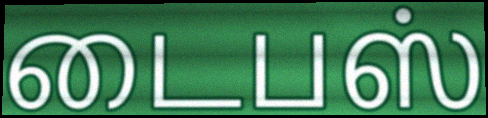
டைபஸ்